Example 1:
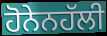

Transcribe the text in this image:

ਹੋਨੇਨਹੱਲੀ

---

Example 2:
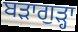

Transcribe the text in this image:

ਬੜਾਗੁੜ੍ਹਾ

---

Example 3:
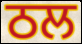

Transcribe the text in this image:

ਠਲ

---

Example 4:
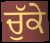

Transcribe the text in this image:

ਚੁੱਕੇ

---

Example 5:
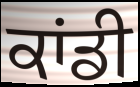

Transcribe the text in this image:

ਕਾਂਡੀ